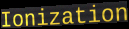
Ionization